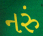
નરું